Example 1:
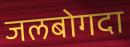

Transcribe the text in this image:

जलबोगदा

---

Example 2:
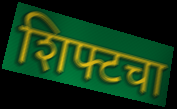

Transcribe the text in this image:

शिफ्टचा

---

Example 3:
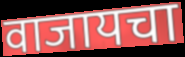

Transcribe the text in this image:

वाजायचा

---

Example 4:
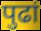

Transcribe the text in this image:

पुढां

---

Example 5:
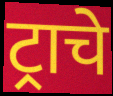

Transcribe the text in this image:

ट्राचे